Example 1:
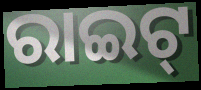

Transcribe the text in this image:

ରାଇଟ୍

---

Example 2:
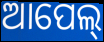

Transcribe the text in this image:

ଆପେଲ୍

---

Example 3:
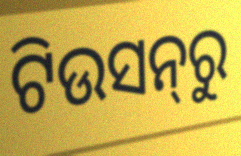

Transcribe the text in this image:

ଟିଉସନ୍‌ରୁ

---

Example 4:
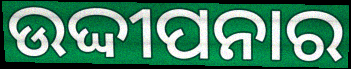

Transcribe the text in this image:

ଉଦ୍ଦୀପନାର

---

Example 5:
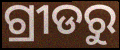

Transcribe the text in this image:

ଗ୍ରୀଡରୁ